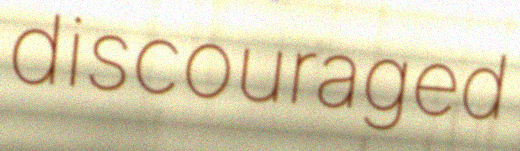
discouraged